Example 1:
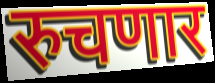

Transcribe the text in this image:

रुचणार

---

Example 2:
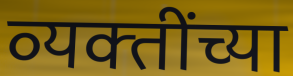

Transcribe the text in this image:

व्‍यक्‍तींच्‍या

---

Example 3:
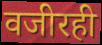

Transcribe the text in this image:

वजीरही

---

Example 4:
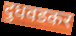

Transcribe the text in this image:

दुधवडकर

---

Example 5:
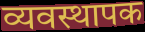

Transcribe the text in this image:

व्यवस्थापक